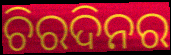
ଚିରଦିନର